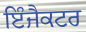
ਇੰਜੈਕਟਰ